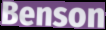
Benson